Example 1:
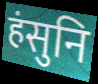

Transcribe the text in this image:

हंसुनि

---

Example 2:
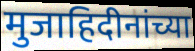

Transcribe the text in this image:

मुजाहिदीनांच्या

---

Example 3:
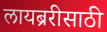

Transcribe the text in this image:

लायब्ररीसाठी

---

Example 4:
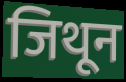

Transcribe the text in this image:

जिथून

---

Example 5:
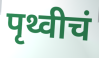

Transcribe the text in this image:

पृथ्वीचं